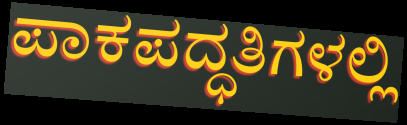
ಪಾಕಪದ್ಧತಿಗಳಲ್ಲಿ